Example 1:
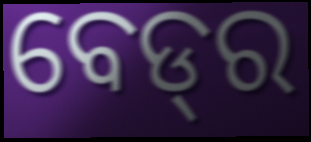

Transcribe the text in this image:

ବେଡ୍‍ର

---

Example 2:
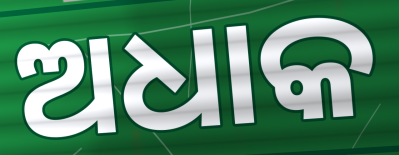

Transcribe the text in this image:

ଅଧାକ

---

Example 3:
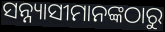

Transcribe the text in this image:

ସନ୍ନ୍ୟାସୀମାନଙ୍କଠାରୁ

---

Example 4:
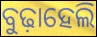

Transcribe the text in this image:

ବୁଢ଼ାହେଲି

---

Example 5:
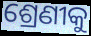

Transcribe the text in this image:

ଶ୍ରେଣୀକୁ